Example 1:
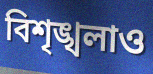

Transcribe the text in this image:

বিশৃঙ্খলাও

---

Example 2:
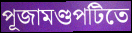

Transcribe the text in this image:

পূজামণ্ডপটিতে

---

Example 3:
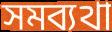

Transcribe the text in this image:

সমব্যথা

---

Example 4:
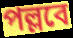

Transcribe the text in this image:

পল্লবে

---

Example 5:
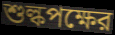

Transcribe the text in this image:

শুল্কপক্ষের